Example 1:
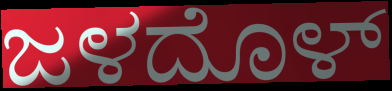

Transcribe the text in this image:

ಜಳದೊಳ್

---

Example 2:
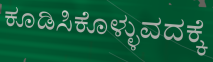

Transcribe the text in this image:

ಕೂಡಿಸಿಕೊಳ್ಳುವದಕ್ಕೆ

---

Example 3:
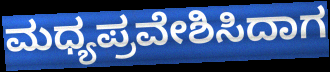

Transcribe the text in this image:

ಮಧ್ಯಪ್ರವೇಶಿಸಿದಾಗ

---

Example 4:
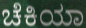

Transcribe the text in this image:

ಚೆಕಿಯಾ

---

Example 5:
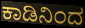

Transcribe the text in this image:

ಕಾಡಿನಿಂದ